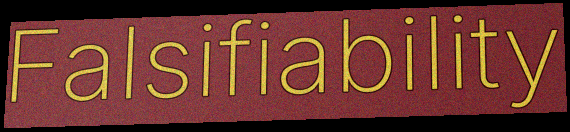
Falsifiability